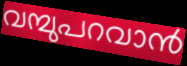
വമ്പുപറവാൻ